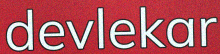
devlekar